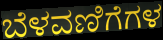
ಬೆಳವಣಿಗೆಗಳ